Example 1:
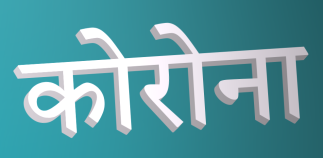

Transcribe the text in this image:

कोरोना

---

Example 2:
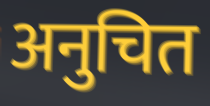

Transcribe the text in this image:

अनुचित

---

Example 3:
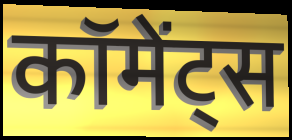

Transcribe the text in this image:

कॉमेंट्स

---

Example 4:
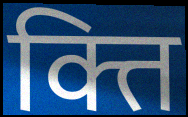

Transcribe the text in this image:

क्ति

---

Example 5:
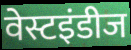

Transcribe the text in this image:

वेस्टइंडीज